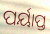
ପର୍ୟାପ୍ତ